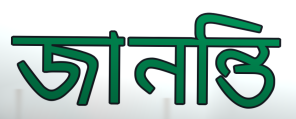
জানন্তি